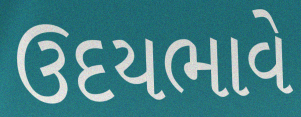
ઉદયભાવે